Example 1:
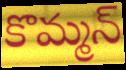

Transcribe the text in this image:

కొమ్మన్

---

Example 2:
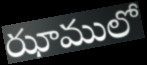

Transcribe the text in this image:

ఝాములో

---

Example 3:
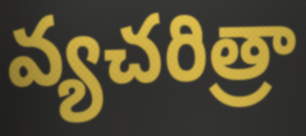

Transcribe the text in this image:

వ్యచరిత్రా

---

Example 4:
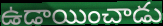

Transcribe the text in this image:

ఉడాయించాడు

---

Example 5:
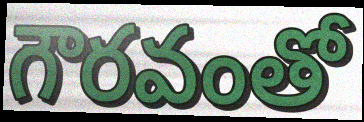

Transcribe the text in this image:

గౌరవంతో